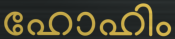
ഹോഹിം